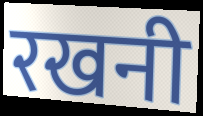
रखनी